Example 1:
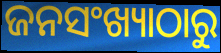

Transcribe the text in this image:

ଜନସଂଖ୍ୟାଠାରୁ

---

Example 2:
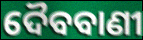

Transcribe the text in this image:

ଦୈବବାଣୀ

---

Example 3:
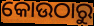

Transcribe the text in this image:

କୋଉଠାରୁ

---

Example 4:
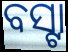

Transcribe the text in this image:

ବସ୍ଟା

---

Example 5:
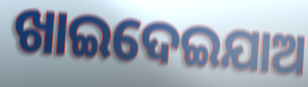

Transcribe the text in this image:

ଖାଇଦେଇଯାଅ